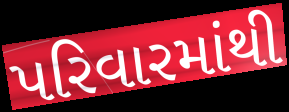
પરિવારમાંથી